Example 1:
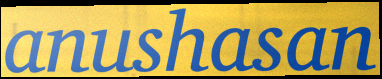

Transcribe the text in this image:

anushasan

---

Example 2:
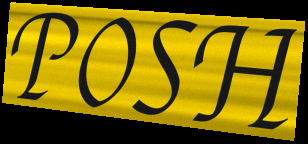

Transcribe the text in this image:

POSH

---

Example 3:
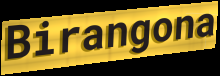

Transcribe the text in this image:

Birangona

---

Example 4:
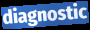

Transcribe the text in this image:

diagnostic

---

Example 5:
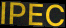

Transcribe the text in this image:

IPEC